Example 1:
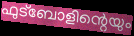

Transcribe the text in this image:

ഫുട്ബോളിന്റെയും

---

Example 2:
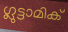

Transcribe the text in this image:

ഗ്ലുട്ടാമിക്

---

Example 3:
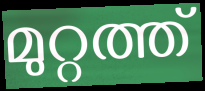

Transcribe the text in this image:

മുറ്റത്ത്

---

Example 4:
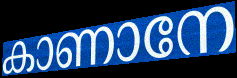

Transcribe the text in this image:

കാണാനേ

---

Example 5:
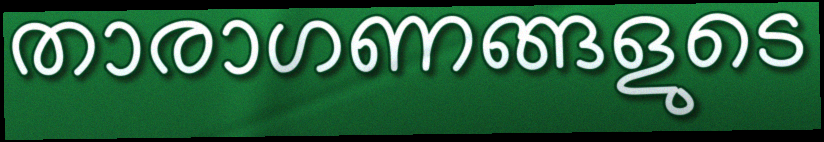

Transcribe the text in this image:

താരാഗണങ്ങളുടെ